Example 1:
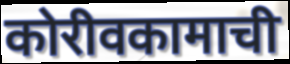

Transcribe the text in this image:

कोरीवकामाची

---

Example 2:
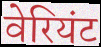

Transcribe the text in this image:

वेरियंट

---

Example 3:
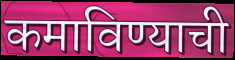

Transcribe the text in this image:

कमाविण्याची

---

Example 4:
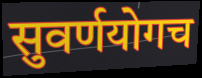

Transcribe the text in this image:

सुवर्णयोगच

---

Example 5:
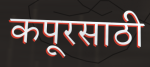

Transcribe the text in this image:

कपूरसाठी